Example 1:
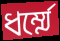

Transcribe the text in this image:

ধর্ম্মে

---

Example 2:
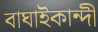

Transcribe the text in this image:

বাঘাইকান্দী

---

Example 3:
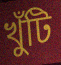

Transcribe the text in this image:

খুঁটি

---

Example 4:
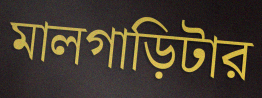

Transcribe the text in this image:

মালগাড়িটার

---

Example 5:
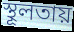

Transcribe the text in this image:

স্থূলতায়